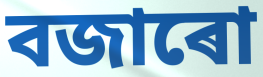
বজাৰো